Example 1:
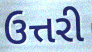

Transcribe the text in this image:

ઉત્તરી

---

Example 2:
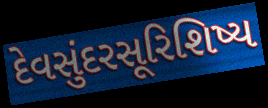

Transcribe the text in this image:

દેવસુંદરસૂરિશિષ્ય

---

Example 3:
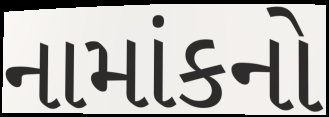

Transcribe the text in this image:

નામાંકનો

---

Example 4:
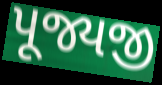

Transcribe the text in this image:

પૂજ્યજી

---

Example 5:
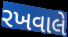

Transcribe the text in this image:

રખવાલે